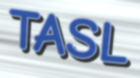
TASL